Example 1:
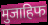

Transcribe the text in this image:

मुजाहिफ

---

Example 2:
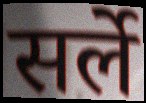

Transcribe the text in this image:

सर्ले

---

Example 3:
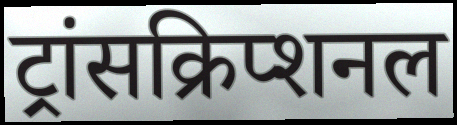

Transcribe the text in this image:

ट्रांसक्रिप्शनल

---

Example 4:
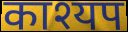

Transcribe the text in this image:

काश्यप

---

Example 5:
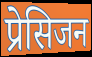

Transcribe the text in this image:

प्रेसिजन